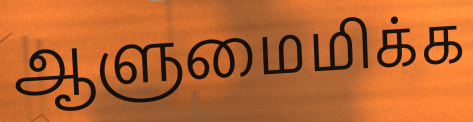
ஆளுமைமிக்க